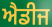
ਐਡੀਜ